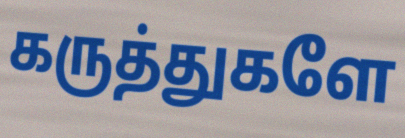
கருத்துகளே